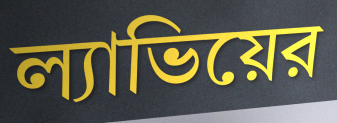
ল্যাভিয়ের